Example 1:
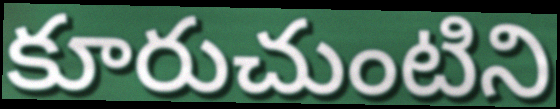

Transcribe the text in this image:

కూరుచుంటిని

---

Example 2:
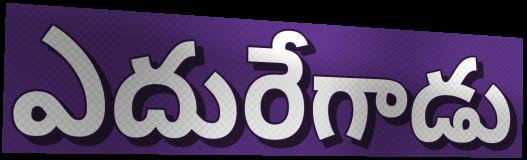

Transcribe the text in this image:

ఎదురేగాడు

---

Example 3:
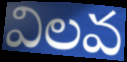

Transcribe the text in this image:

విలవ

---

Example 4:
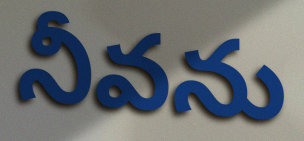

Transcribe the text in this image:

నీవను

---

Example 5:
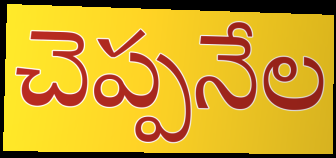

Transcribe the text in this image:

చెప్పనేల